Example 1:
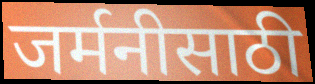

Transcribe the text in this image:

जर्मनीसाठी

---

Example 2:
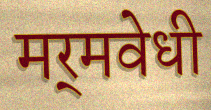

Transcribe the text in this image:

मर्मवेधी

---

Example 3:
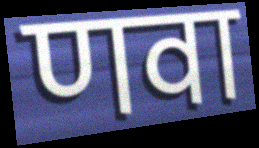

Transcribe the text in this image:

णवा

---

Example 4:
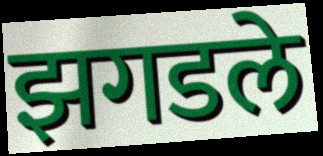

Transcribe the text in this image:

झगडले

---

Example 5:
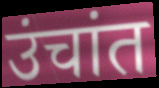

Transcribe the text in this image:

उंचांत